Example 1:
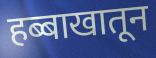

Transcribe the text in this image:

हब्बाखातून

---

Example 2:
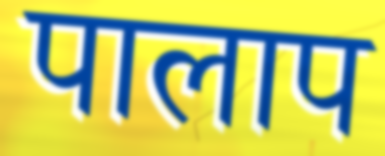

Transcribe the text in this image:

पालाप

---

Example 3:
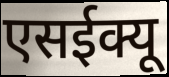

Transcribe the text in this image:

एसईक्यू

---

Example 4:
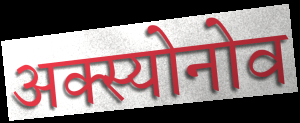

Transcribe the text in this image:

अक्स्योनोव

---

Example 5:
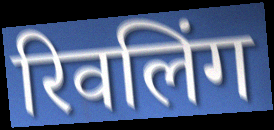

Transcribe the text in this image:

रिवलिंग